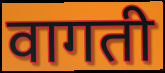
वागती